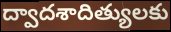
ద్వాదశాదిత్యులకు